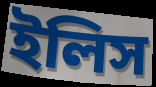
ইলিস